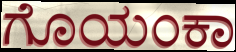
ಗೊಯಂಕಾ